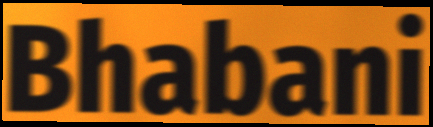
Bhabani